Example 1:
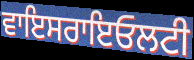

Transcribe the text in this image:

ਵਾਇਸਰਾਇਓਲਟੀ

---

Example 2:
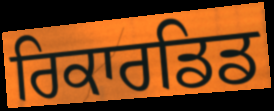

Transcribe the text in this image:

ਰਿਕਾਰਡਿਡ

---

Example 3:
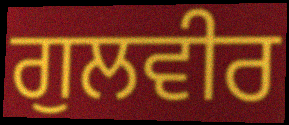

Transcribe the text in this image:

ਗੁਲਵੀਰ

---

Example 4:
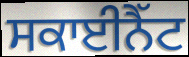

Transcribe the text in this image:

ਸਕਾਈਨੈੱਟ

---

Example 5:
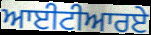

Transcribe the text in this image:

ਆਈਟੀਆਰਏ